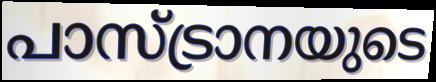
പാസ്ട്രാനയുടെ